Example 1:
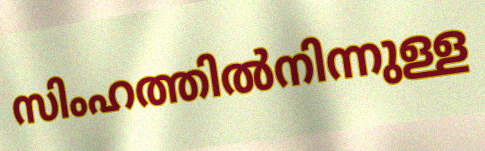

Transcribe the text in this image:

സിംഹത്തിൽനിന്നുള്ള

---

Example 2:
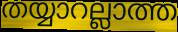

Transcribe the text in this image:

തയ്യാറല്ലാത്ത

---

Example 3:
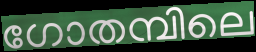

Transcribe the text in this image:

ഗോതമ്പിലെ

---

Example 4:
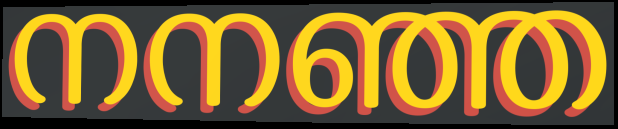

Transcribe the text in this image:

നനഞ്ഞ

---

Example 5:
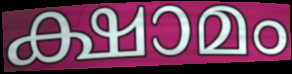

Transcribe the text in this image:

ക്ഷാമം